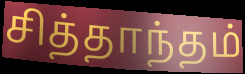
சித்தாந்தம்